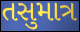
તસુમાત્ર